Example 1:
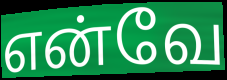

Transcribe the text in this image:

என்வே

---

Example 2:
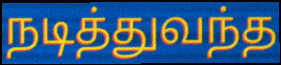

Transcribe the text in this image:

நடித்துவந்த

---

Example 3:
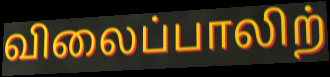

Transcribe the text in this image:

விலைப்பாலிற்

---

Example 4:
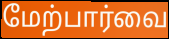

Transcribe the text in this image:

மேற்பார்வை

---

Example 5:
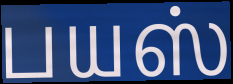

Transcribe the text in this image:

பயஸ்